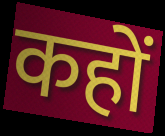
कहों